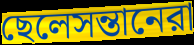
ছেলেসন্তানেরা